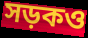
সড়কও